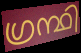
ഗ്രന്ഥി